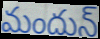
మందున్